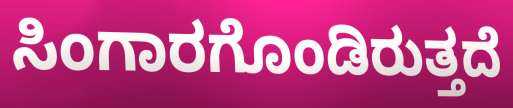
ಸಿಂಗಾರಗೊಂಡಿರುತ್ತದೆ